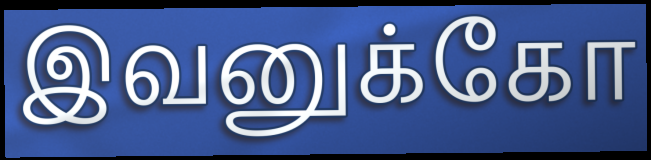
இவனுக்கோ